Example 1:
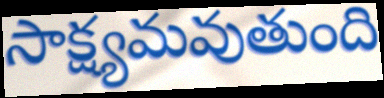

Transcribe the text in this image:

సాక్ష్యమవుతుంది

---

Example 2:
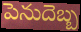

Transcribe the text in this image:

పెనుదెబ్బ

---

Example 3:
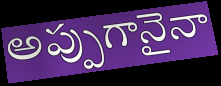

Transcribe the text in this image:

అప్పుగానైనా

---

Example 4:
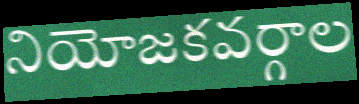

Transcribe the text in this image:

నియోజకవర్గాల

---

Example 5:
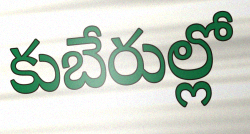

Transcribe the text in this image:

కుబేరుల్లో